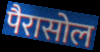
पैरासोल